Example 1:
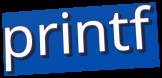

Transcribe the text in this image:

printf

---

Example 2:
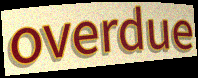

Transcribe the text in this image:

overdue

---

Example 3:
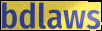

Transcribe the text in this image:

bdlaws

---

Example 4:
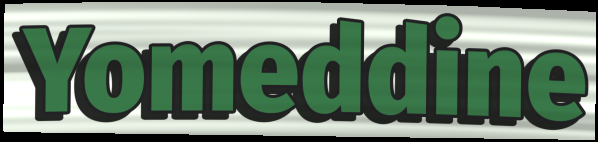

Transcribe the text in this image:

Yomeddine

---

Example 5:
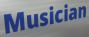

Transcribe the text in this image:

Musician